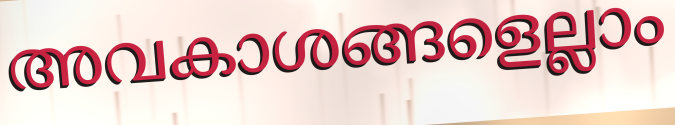
അവകാശങ്ങളെല്ലാം